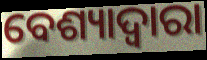
ବେଶ୍ୟାଦ୍ୱାରା